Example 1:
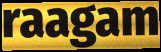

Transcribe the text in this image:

raagam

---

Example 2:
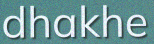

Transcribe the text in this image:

dhakhe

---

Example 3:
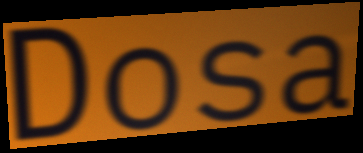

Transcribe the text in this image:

Dosa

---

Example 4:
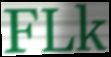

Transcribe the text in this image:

FLk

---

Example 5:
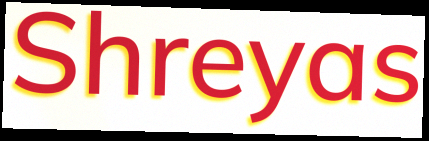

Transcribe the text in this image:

Shreyas